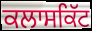
ਕਲਾਸਕਿੱਟ